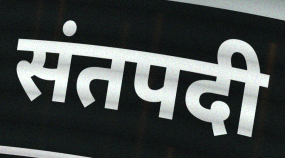
संतपदी